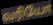
வரியோ